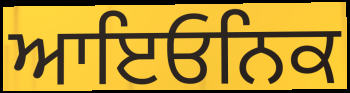
ਆਇਓਨਿਕ